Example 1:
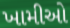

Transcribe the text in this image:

ખામીઓ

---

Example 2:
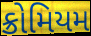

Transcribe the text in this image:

ક્રોમિયમ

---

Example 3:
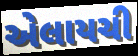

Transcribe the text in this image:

એલાયચી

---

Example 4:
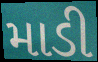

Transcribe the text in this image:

માડી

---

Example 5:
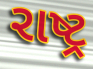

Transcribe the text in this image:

રાષ્ટ્ર